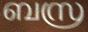
ബസ്ര